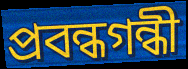
প্রবন্ধগন্ধী